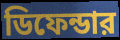
ডিফেন্ডার